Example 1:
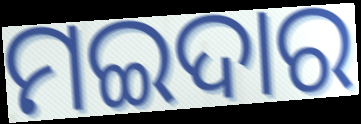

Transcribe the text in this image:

ମଇଦାର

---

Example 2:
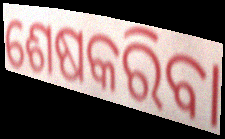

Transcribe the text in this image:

ଶେଷକରିବା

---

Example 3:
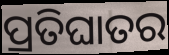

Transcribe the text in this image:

ପ୍ରତିଘାତର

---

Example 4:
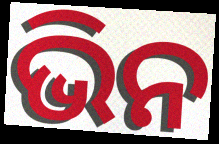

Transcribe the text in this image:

ଭିନ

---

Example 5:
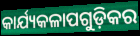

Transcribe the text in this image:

କାର୍ଯ୍ୟକଳାପଗୁଡ଼ିକର